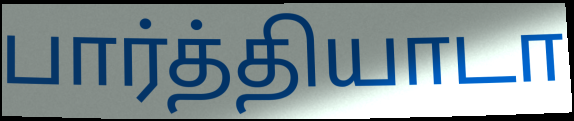
பார்த்தியாடா